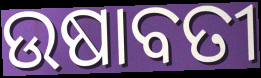
ଉଷାବତୀ